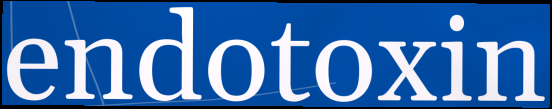
endotoxin